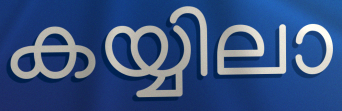
കയ്യിലാ